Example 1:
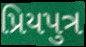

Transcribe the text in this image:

પ્રિયપુત્ર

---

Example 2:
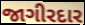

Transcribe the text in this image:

જાગીરદાર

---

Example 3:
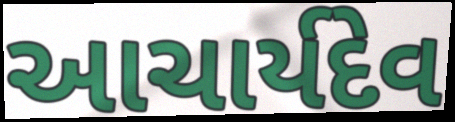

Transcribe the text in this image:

આચાર્યદેવ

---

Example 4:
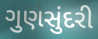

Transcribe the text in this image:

ગુણસુંદરી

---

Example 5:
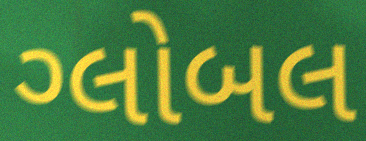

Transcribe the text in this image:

ગ્લોબલ